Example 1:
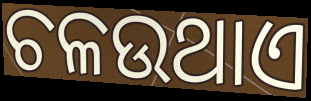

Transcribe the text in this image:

ଚଳଉଥାଏ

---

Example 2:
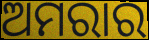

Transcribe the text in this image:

ଅମରାର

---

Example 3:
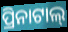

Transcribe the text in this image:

ପ୍ରିନାଟାଲ୍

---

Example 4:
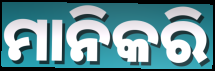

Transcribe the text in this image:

ମାନିକରି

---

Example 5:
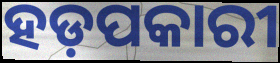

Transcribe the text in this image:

ହଡ଼ପକାରୀ